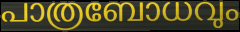
പാത്രബോധവും